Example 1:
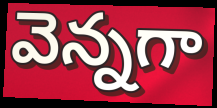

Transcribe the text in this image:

వెన్నగా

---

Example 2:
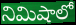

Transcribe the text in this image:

నిమిషాలో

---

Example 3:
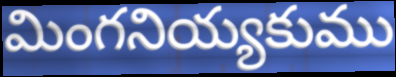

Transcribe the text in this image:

మింగనియ్యకుము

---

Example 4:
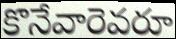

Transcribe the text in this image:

కొనేవారెవరూ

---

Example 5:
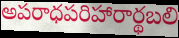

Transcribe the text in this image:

అపరాధపరిహారార్థబలి